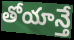
తోయాన్తే